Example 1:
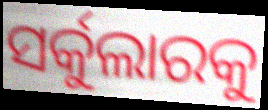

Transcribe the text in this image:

ସର୍କୁଲାରକୁ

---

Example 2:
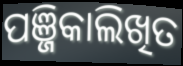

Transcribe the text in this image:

ପଞ୍ଜିକାଲିଖିତ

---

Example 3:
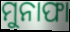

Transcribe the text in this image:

ମୁନାଫା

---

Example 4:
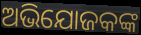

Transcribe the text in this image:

ଅଭିଯୋଜକଙ୍କ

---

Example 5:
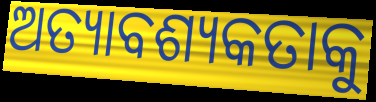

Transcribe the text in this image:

ଅତ୍ୟାବଶ୍ୟକତାକୁ